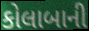
કોલાબાની